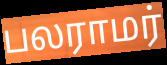
பலராமர்